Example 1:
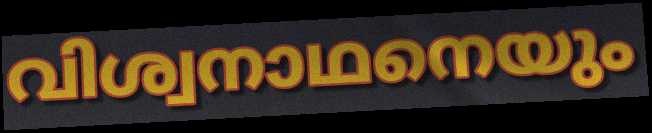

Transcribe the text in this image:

വിശ്വനാഥനെയും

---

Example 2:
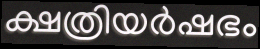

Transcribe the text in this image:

ക്ഷത്രിയർഷഭം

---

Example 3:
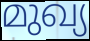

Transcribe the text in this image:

മുഖ്യ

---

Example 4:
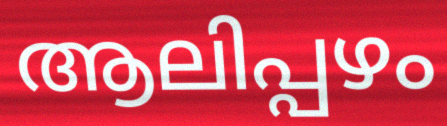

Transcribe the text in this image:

ആലിപ്പഴം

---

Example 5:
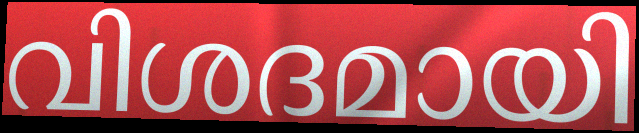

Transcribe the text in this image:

വിശദമായി